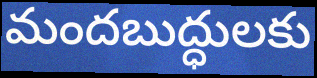
మందబుద్ధులకు